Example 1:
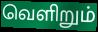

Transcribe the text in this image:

வெளிறும்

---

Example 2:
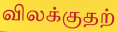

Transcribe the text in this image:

விலக்குதற்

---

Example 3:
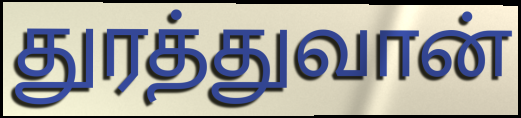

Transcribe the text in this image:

துரத்துவான்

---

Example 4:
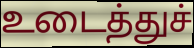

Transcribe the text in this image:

உடைத்துச்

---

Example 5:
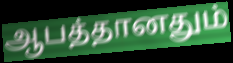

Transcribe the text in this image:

ஆபத்தானதும்